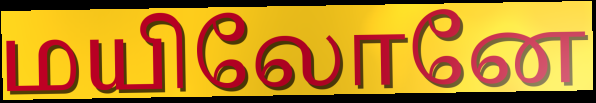
மயிலோனே